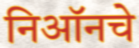
निऑनचे